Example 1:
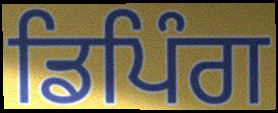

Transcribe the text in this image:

ਡਿਪਿੰਗ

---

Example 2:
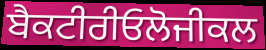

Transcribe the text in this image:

ਬੈਕਟੀਰੀਓਲੋਜੀਕਲ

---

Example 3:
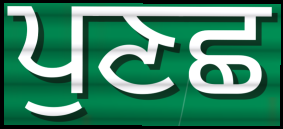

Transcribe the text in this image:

ਪੁਣਛ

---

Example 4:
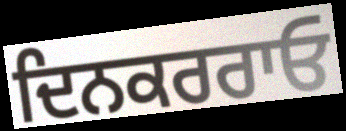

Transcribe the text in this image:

ਦਿਨਕਰਰਾਓ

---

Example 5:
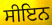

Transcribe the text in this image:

ਸੀਇਨ